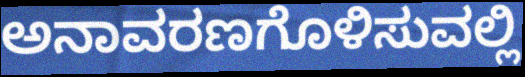
ಅನಾವರಣಗೊಳಿಸುವಲ್ಲಿ